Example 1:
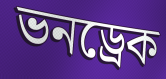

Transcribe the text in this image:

ভনড্রেক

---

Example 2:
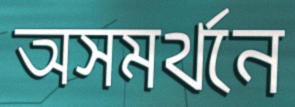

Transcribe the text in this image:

অসমর্থনে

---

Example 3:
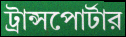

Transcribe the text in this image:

ট্রান্সপোর্টার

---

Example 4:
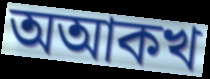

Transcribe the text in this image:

অআকখ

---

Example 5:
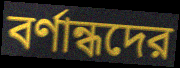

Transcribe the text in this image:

বর্ণান্ধদের